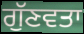
ਗੁੱਣਵਤਾ